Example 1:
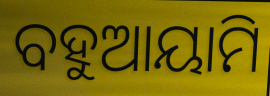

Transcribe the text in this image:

ବହୁଆୟାମି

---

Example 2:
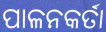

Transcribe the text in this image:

ପାଳନକର୍ତା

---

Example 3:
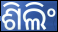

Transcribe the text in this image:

ଶିଲିଂ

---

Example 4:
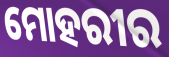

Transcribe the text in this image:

ମୋହରୀର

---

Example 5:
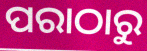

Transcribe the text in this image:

ପରାଠାରୁ